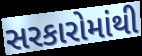
સરકારોમાંથી